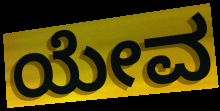
ಯೇವ